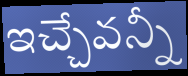
ఇచ్చేవన్నీ